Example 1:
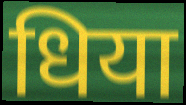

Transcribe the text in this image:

धिया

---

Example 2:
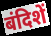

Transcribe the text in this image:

बंदिशें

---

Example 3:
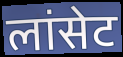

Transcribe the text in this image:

लांसेट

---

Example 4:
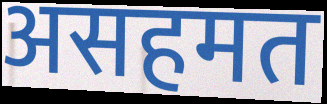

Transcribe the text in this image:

असहमत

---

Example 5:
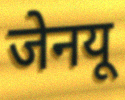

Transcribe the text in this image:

जेनयू